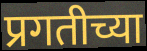
प्रगतीच्या